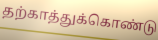
தற்காத்துக்கொண்டு